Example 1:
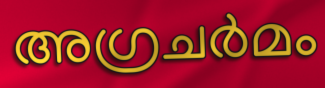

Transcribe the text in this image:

അഗ്രചർമം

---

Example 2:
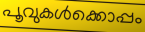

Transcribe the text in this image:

പൂവുകൾക്കൊപ്പം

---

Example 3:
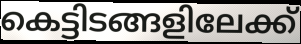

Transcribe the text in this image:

കെട്ടിടങ്ങളിലേക്ക്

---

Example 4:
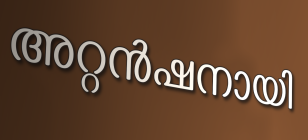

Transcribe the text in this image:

അറ്റൻഷനായി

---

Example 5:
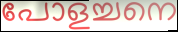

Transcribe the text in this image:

പോളച്ചനെ